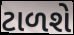
ટાળશે